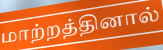
மாற்றத்தினால்